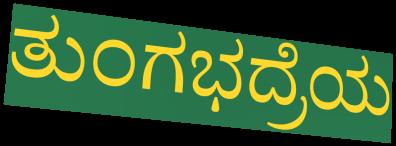
ತುಂಗಭದ್ರೆಯ